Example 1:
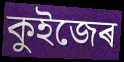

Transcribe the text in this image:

কুইজেৰ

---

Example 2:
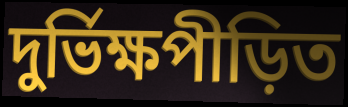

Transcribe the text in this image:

দুৰ্ভিক্ষপীড়িত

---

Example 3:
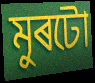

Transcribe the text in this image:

মুৰটো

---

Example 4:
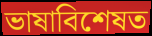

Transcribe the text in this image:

ভাষাবিশেষত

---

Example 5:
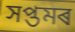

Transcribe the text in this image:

সপ্তমৰ